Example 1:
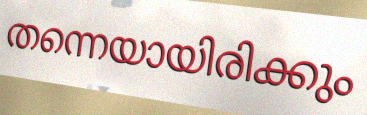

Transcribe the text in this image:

തന്നെയായിരിക്കും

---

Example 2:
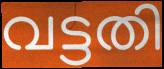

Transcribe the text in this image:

വട്ടതി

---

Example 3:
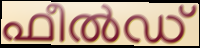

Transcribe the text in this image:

ഫീൽഡ്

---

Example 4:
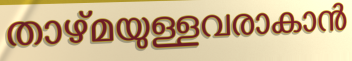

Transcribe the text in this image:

താഴ്മയുള്ളവരാകാൻ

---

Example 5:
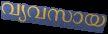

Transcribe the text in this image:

വ്യവസായ